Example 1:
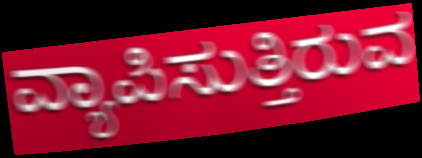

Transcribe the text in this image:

ವ್ಯಾಪಿಸುತ್ತಿರುವ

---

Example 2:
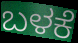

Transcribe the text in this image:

ಬಳಕೆ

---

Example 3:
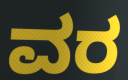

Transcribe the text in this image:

ವರ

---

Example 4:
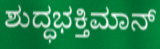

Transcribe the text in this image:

ಶುದ್ಧಭಕ್ತಿಮಾನ್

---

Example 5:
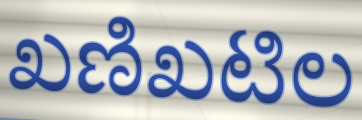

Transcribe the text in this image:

ಖಣಿಖಟಿಲ